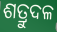
ଶତ୍ରୁଦଳ